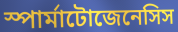
স্পার্মাটোজেনেসিস